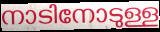
നാടിനോടുള്ള